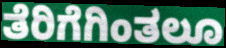
ತೆರಿಗೆಗಿಂತಲೂ